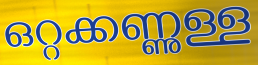
ഒറ്റക്കണ്ണുള്ള